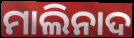
ମାଲିନାଦ